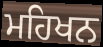
ਮਹਿਖਨ